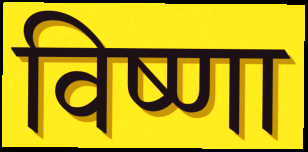
विष्णा